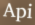
Api